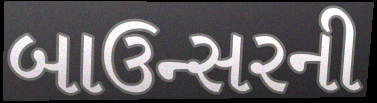
બાઉન્સરની